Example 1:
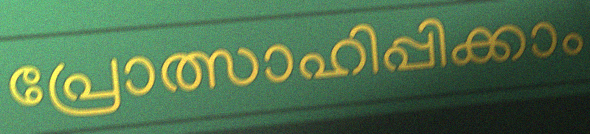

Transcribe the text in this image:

പ്രോത്സാഹിപ്പിക്കാം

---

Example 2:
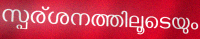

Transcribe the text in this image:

സ്പര്ശനത്തിലൂടെയും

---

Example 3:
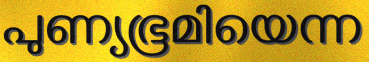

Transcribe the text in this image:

പുണ്യഭൂമിയെന്ന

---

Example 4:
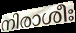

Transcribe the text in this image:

നിരാശീഃ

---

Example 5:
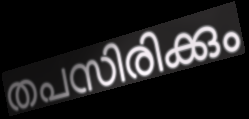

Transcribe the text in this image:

തപസിരിക്കും